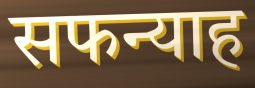
सफन्याह